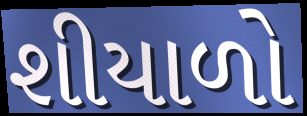
શીયાળો